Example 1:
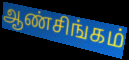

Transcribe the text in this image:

ஆண்சிங்கம்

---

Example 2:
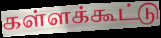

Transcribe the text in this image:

கள்ளக்கூட்டு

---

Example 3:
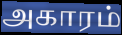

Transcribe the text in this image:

அகாரம்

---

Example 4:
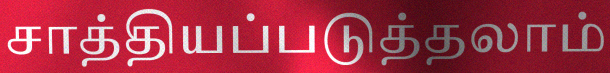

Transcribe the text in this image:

சாத்தியப்படுத்தலாம்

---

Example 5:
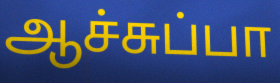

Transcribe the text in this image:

ஆச்சுப்பா